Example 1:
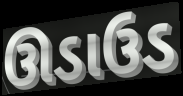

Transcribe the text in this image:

ઊડાઉડ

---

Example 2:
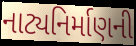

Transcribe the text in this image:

નાટ્યનિર્માણની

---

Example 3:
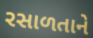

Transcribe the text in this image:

રસાળતાને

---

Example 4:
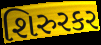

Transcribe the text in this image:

શિરુરકર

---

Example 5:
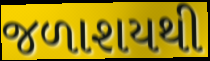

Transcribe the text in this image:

જળાશયથી